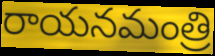
రాయనమంత్రి